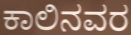
ಕಾಲಿನವರ